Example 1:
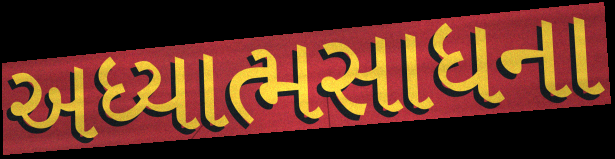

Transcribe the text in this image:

અધ્યાત્મસાધના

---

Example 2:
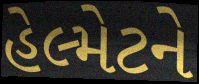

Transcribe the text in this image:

હેલ્મેટને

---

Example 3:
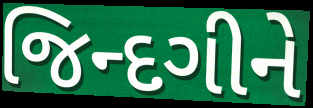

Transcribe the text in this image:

જિન્દગીને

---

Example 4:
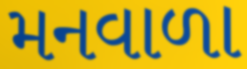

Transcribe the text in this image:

મનવાળા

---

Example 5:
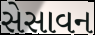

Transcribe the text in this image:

સેસાવન